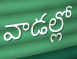
వాడల్లో